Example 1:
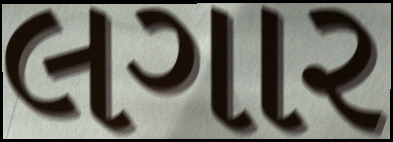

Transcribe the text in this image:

લગાર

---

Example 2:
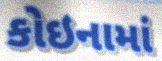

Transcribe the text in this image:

કોઇનામાં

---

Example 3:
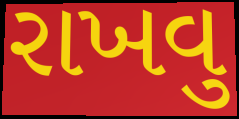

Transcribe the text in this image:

રાખવુ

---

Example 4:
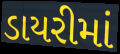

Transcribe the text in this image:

ડાયરીમાં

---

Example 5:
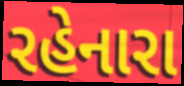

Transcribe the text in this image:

રહેનારા